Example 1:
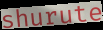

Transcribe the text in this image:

shurute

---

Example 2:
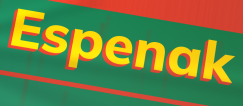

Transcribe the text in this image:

Espenak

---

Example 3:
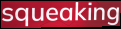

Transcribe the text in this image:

squeaking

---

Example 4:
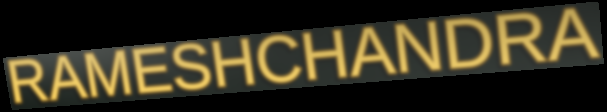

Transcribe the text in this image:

RAMESHCHANDRA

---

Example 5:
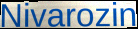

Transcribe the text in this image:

Nivarozin